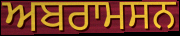
ਅਬਰਾਮਸਨ